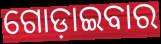
ଗୋଡ଼ାଇବାର